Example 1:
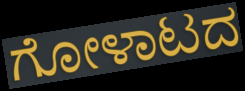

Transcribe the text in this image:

ಗೋಳಾಟದ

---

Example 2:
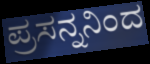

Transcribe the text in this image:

ಪ್ರಸನ್ನನಿಂದ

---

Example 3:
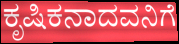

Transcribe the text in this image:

ಕೃಷಿಕನಾದವನಿಗೆ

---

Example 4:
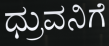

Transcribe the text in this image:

ಧ್ರುವನಿಗೆ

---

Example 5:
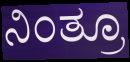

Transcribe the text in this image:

ನಿಂತ್ರೂ